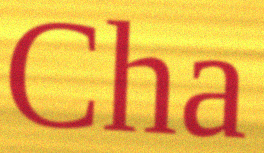
Cha